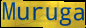
Muruga